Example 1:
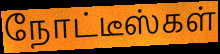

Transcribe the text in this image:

நோட்டீஸ்கள்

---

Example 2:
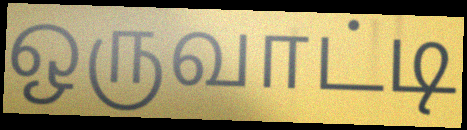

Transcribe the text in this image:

ஒருவாட்டி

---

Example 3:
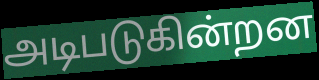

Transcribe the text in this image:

அடிபடுகின்றன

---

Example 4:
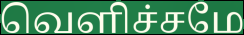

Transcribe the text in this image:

வெளிச்சமே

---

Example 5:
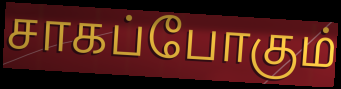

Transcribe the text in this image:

சாகப்போகும்